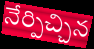
నేర్పిచ్చిన